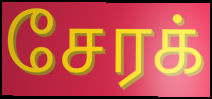
சேரக்